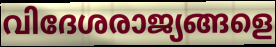
വിദേശരാജ്യങ്ങളെ